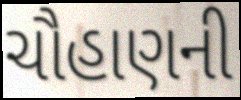
ચૌહાણની